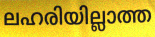
ലഹരിയില്ലാത്ത